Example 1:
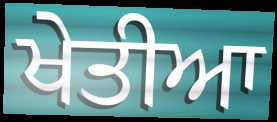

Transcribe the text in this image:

ਖੇਤੀਆ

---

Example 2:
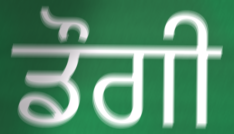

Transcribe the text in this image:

ਡੌਗੀ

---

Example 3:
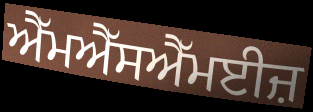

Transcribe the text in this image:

ਐੱਮਐੱਸਐੱਮਈਜ਼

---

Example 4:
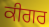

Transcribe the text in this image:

ਕੀਗਰ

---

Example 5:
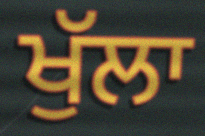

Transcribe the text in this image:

ਖੁੱਲਾ